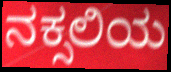
ನಕ್ಸಲಿಯ